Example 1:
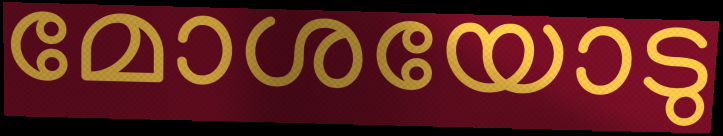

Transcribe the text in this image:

മോശയോടു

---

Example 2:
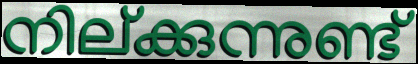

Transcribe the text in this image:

നില്ക്കുന്നുണ്ട്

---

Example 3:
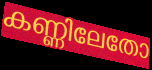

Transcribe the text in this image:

കണ്ണിലേതോ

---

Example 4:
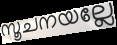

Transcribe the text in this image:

സൂചനയല്ലേ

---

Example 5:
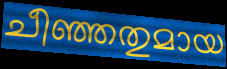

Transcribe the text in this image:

ചീഞ്ഞതുമായ